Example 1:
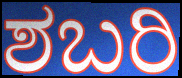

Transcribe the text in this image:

ಶಬರಿ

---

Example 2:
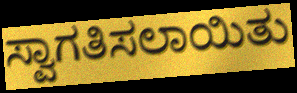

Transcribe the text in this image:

ಸ್ವಾಗತಿಸಲಾಯಿತು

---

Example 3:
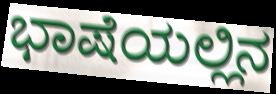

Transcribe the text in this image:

ಭಾಷೆಯಲ್ಲಿನ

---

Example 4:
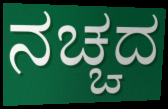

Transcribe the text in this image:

ನಚ್ಚದ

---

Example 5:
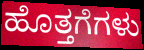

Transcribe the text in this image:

ಹೊತ್ತಗೆಗಳು